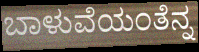
ಬಾಳುವೆಯಂತೆನ್ನ